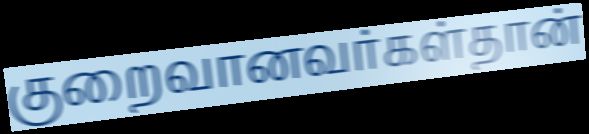
குறைவானவர்கள்தான்